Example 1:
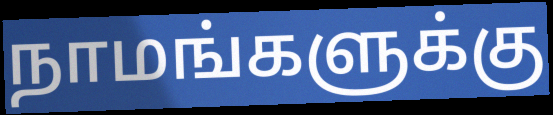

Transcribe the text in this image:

நாமங்களுக்கு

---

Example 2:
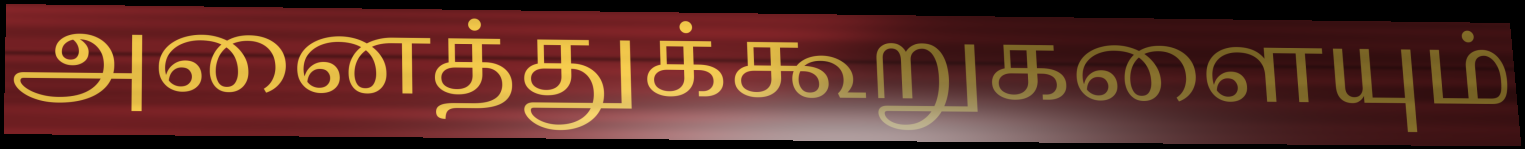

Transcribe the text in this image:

அனைத்துக்கூறுகளையும்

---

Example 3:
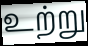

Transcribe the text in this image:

உற்று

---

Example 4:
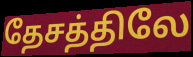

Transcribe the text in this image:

தேசத்திலே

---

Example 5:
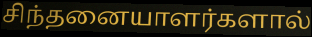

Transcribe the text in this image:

சிந்தனையாளர்களால்